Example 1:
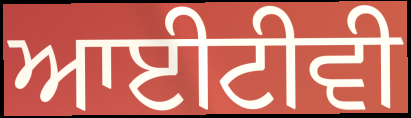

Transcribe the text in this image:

ਆਈਟੀਵੀ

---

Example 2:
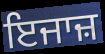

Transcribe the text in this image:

ਇਜਾਜ਼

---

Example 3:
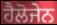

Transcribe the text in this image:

ਹੈਲੋਜੇਨ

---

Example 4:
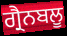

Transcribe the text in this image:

ਗ੍ਰੈਨਬਲੂ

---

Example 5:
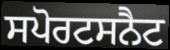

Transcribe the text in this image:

ਸਪੋਰਟਸਨੈਟ